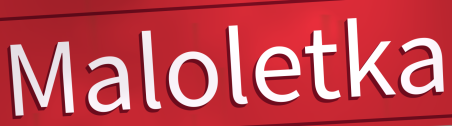
Maloletka